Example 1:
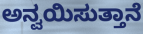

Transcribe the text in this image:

ಅನ್ವಯಿಸುತ್ತಾನೆ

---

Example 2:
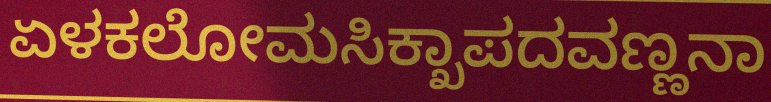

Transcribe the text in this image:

ಏಳಕಲೋಮಸಿಕ್ಖಾಪದವಣ್ಣನಾ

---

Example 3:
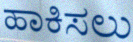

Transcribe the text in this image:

ಹಾಕಿಸಲು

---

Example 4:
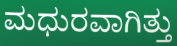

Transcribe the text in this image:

ಮಧುರವಾಗಿತ್ತು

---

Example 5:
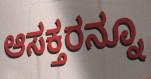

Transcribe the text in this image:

ಆಸಕ್ತರನ್ನೂ